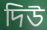
দিউ